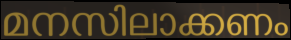
മനസിലാക്കണം